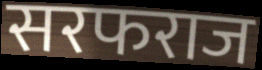
सरफराज